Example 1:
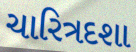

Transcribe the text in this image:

ચારિત્રદશા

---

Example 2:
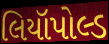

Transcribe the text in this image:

લિયૉપોલ્ડ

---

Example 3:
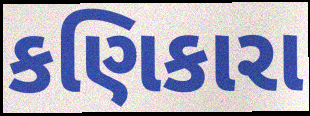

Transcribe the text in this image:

કણિકારા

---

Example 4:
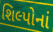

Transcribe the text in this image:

શિલ્પોનાં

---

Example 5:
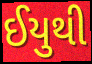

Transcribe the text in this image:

ઈયુથી